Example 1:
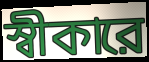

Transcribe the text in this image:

স্বীকারে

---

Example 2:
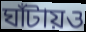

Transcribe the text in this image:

ঘাঁটায়ও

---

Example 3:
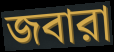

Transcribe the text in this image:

জবারা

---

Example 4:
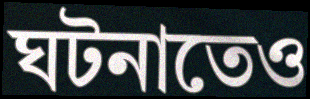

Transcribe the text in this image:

ঘটনাতেও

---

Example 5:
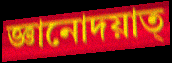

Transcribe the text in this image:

জ্ঞানোদয়াত্